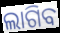
ଲାଗିବ